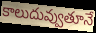
కాలుదువ్వుతూనే